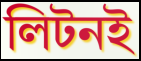
লিটনই